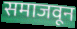
समाजवून